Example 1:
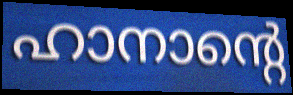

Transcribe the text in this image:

ഹാനാന്റെ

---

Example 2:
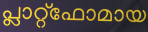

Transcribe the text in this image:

പ്ലാറ്റ്ഫോമായ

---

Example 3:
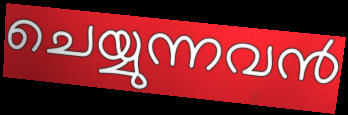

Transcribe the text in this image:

ചെയ്യുന്നവൻ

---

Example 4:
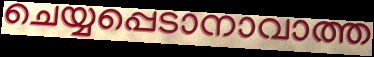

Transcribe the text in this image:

ചെയ്യപ്പെടാനാവാത്ത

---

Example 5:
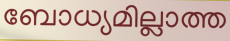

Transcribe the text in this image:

ബോധ്യമില്ലാത്ത